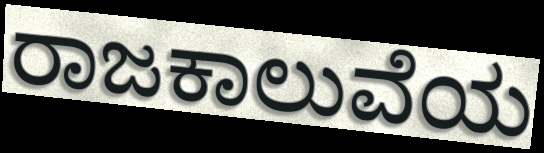
ರಾಜಕಾಲುವೆಯ